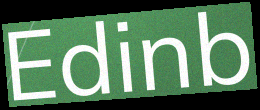
Edinb